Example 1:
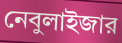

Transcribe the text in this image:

নেবুলাইজার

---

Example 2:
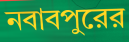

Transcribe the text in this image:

নবাবপুরের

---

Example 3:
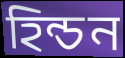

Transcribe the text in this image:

হিন্ডন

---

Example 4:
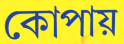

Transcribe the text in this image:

কোপায়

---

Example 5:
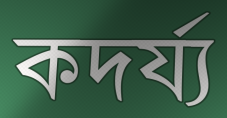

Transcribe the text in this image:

কদর্য্য